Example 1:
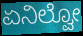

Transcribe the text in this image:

ಏನಿಲ್ವೋ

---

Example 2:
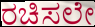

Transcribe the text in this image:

ರಚಿಸಲೇ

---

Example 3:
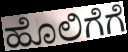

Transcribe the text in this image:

ಹೊಲಿಗೆಗೆ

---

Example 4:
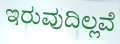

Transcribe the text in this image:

ಇರುವುದಿಲ್ಲವೆ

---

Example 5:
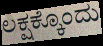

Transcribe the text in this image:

ಲಕ್ಷಕ್ಕೊಂದು